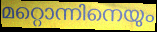
മറ്റൊന്നിനെയും